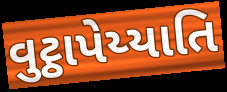
વુટ્ઠાપેય્યાતિ